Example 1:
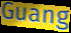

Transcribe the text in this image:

Guang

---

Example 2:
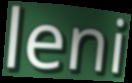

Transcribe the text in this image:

leni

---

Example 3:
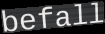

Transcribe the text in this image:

befall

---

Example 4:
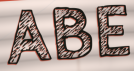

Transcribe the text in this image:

ABE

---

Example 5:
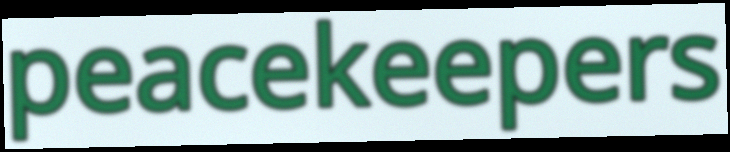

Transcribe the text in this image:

peacekeepers